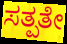
ಸತ್ಪತೇ